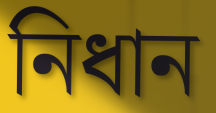
নিধান